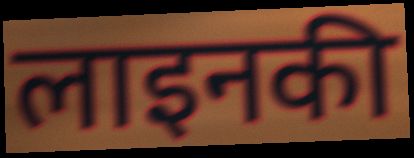
लाइनकी